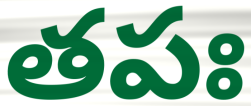
తపః